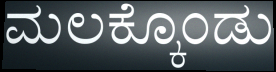
ಮಲಕ್ಕೊಂಡು